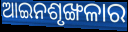
ଆଇନଶୃଙ୍ଖଳାର